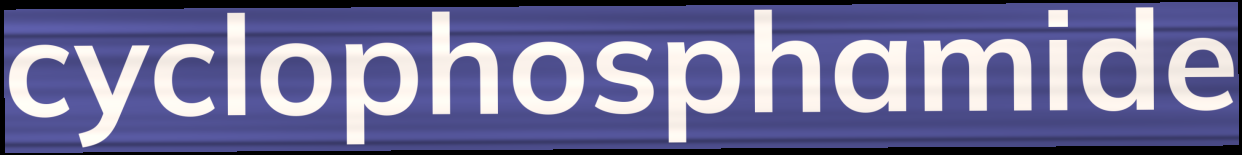
cyclophosphamide